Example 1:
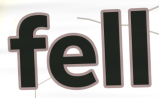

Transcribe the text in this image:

fell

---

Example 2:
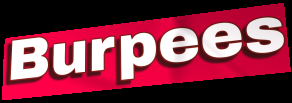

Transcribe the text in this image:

Burpees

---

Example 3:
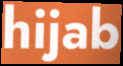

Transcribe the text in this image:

hijab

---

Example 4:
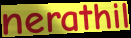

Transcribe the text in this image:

nerathil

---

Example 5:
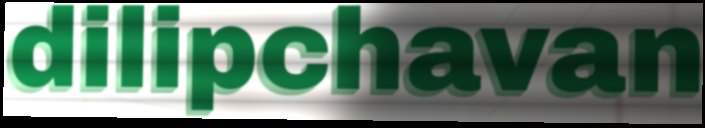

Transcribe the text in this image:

dilipchavan